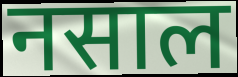
नसाल